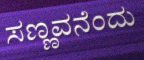
ಸಣ್ಣವನೆಂದು